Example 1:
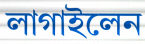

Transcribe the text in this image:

লাগাইলেন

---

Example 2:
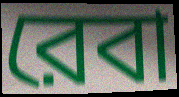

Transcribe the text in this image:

রেবা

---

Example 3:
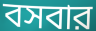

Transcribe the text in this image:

বসবার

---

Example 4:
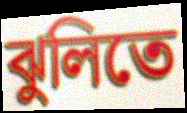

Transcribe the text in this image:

ঝুলিতে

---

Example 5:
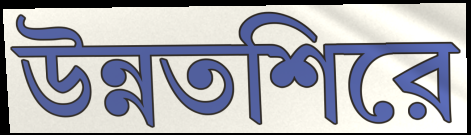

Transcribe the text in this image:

উন্নতশিরে